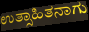
ಉತ್ಸಾಹಿತನಾಗು